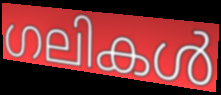
ഗലികൾ